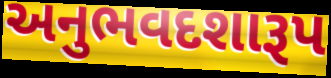
અનુભવદશારૂપ